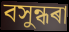
বসুন্ধৰা